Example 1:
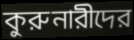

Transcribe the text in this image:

কুরুনারীদের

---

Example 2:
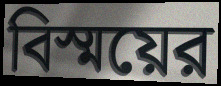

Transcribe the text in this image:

বিস্ময়ের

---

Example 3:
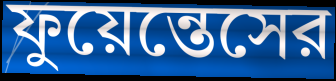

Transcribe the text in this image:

ফুয়েন্তেসের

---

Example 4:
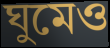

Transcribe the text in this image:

ঘুমেও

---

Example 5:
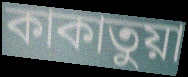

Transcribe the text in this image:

কাকাতুয়া